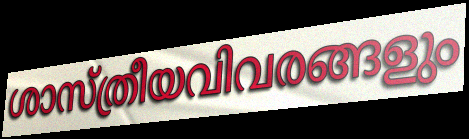
ശാസ്ത്രീയവിവരങ്ങളും